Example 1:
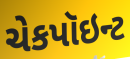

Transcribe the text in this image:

ચેકપૉઇન્ટ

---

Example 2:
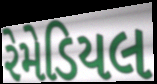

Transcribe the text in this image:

રેમેડિયલ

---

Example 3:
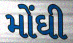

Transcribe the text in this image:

મોંઘી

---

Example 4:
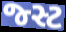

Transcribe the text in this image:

જ્સ્ટ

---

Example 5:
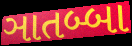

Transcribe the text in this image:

ઞાતબ્બા